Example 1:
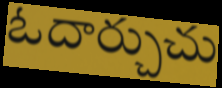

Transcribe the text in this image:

ఓదార్చుచు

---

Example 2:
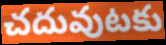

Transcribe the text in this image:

చదువుటకు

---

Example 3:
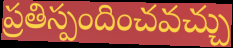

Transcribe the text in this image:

ప్రతిస్పందించవచ్చు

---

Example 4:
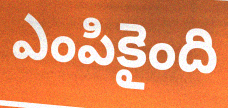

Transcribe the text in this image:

ఎంపికైంది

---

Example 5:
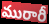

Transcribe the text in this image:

మురారీ